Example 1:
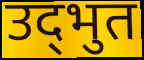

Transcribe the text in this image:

उद्भुत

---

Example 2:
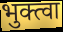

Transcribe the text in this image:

भुक्त्वा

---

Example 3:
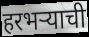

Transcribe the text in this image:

हरभऱ्याची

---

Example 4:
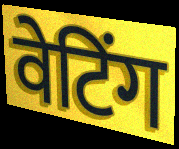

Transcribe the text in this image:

वेटिंग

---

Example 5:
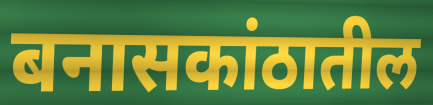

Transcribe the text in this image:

बनासकांठातील